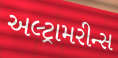
અલ્ટ્રામરીન્સ